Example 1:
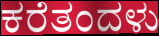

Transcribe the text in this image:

ಕರೆತಂದಳು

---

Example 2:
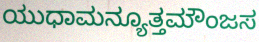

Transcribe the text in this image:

ಯುಧಾಮನ್ಯೂತ್ತಮೌಂಜಸ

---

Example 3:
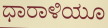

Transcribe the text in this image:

ಧಾರಾಳಿಯೂ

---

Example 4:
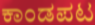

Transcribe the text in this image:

ಕಾಂಡಪಟ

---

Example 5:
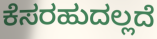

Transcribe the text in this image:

ಕೆಸರಹುದಲ್ಲದೆ